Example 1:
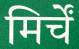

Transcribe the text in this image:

मिर्चें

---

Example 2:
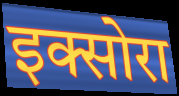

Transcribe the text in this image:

इक्सोरा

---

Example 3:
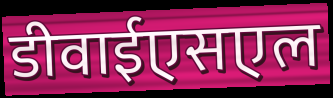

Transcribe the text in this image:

डीवाईएसएल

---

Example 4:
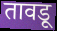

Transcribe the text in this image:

तावडू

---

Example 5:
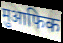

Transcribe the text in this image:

मुआफिक